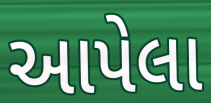
આપેલા